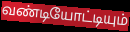
வண்டியோட்டியும்